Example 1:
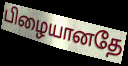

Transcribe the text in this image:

பிழையானதே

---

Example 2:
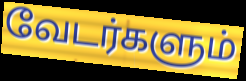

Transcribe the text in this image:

வேடர்களும்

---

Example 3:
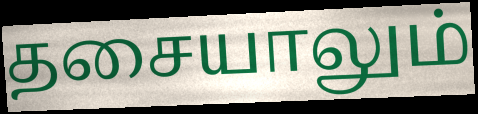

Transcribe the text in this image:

தசையாலும்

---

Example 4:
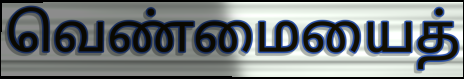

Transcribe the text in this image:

வெண்மையைத்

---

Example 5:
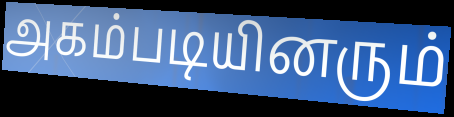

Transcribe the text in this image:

அகம்படியினரும்